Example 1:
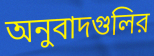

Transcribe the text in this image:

অনুবাদগুলির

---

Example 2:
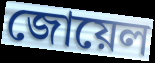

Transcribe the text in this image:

জোয়েল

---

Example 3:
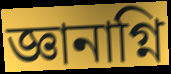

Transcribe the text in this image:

জ্ঞানাগ্নি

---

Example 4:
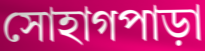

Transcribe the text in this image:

সোহাগপাড়া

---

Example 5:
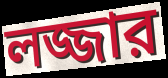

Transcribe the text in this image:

লজ্জার